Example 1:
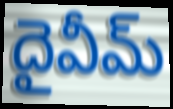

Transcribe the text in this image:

దైవీమ్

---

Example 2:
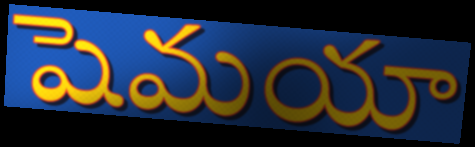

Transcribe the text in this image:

షెమయా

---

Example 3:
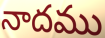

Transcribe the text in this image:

నాదము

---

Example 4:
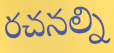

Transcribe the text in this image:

రచనల్ని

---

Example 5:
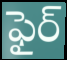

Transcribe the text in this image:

ఫైర్